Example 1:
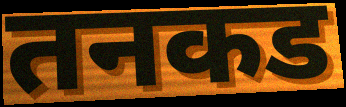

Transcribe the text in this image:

तनकड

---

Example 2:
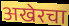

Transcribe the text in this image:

अखेरचा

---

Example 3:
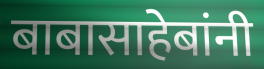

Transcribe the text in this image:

बाबासाहेबांनी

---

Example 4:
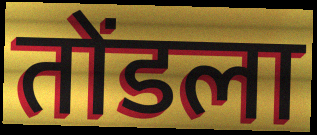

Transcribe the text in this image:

तोंडला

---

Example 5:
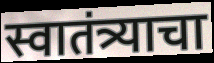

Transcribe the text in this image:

स्वातंत्र्याचा